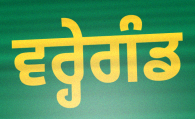
ਵਰ੍ਹੇਗੰਡ